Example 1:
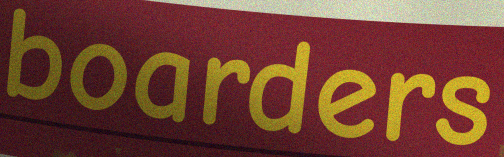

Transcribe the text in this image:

boarders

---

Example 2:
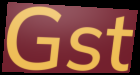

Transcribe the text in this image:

Gst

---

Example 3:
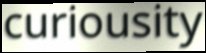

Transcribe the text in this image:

curiousity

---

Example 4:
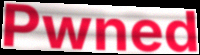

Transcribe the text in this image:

Pwned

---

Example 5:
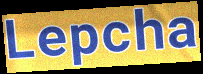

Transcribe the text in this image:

Lepcha